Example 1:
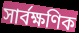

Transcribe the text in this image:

সার্বক্ষণিক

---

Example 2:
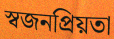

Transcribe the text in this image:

স্বজনপ্রিয়তা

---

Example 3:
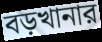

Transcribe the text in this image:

বড়খানার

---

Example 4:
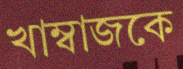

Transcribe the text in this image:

খাম্বাজকে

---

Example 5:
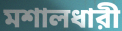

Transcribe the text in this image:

মশালধারী